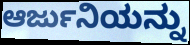
ಆರ್ಜುನಿಯನ್ನು